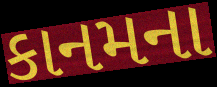
કાનમના